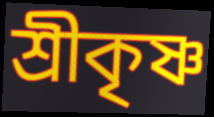
শ্রীকৃষ্ণ